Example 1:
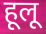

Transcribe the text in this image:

हूलू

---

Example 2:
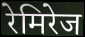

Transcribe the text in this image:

रेमिरेज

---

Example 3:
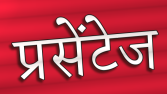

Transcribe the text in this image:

प्रसेंटेज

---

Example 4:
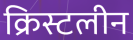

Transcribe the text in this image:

क्रिस्टलीन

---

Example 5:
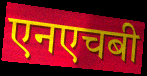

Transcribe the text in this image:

एनएचबी